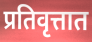
प्रतिवृत्तात